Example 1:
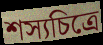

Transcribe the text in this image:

শস্যচিত্রে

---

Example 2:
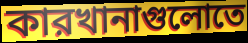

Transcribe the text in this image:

কারখানাগুলোতে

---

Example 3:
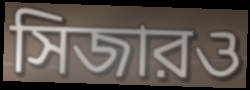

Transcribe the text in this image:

সিজারও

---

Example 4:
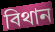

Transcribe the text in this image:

বিথান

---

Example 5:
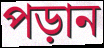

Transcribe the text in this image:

পড়ান